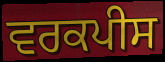
ਵਰਕਪੀਸ